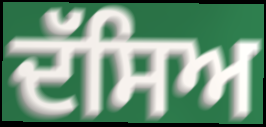
ਦੱਸਿਅ